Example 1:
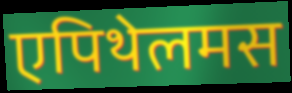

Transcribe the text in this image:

एपिथेलमस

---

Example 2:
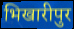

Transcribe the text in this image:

भिखारीपुर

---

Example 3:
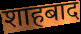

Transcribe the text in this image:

शाहबाद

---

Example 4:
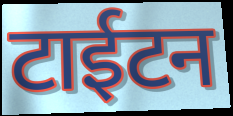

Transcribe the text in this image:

टाईटन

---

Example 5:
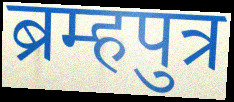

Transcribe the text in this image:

ब्रम्हपुत्र